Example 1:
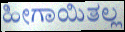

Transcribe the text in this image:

ಹೀಗಾಯಿತಲ್ಲ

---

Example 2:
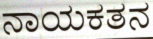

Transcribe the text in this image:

ನಾಯಕತನ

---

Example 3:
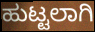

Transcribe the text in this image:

ಹುಟ್ಟಲಾಗಿ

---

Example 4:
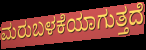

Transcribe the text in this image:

ಮರುಬಳಕೆಯಾಗುತ್ತದೆ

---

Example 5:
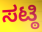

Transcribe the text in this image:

ಸಟ್ಠಿ